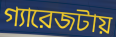
গ্যারেজটায়